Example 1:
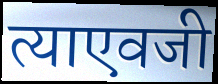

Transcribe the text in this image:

त्याएवजी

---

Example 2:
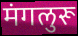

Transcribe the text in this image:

मंगलुरू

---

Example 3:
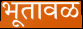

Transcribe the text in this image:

भूतावळ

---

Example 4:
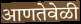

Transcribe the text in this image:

आणतेवेळी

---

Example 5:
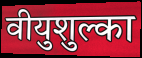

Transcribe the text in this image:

वीयुशुल्का